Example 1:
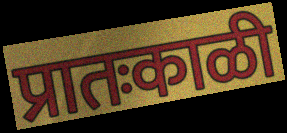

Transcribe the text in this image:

प्रातःकाळी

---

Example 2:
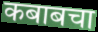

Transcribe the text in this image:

कबाबचा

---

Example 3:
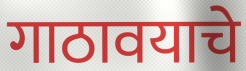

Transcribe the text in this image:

गाठावयाचे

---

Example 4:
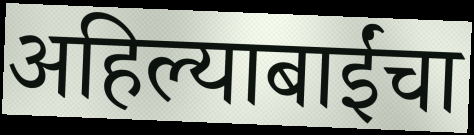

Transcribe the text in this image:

अहिल्याबाईंचा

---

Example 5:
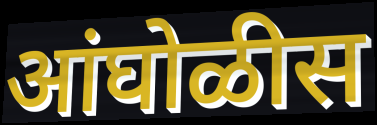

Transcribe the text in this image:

आंघोळीस